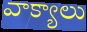
వాక్యాలు